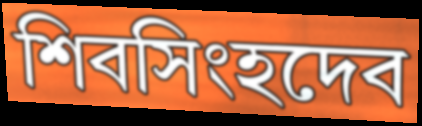
শিবসিংহদেব